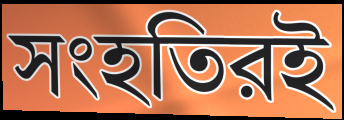
সংহতিরই